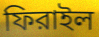
ফিরাইল